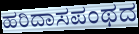
ಹರಿದಾಸಪಂಥದ